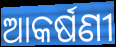
ଆକର୍ଷଣୀ